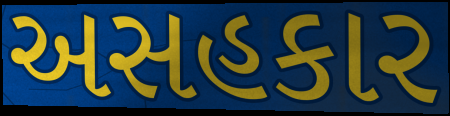
અસહકાર